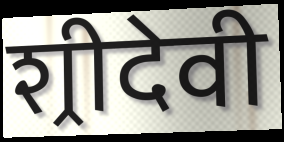
श्रीदेवी